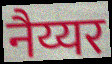
नैय्यर